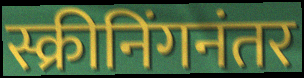
स्क्रीनिंगनंतर